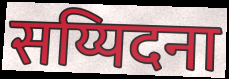
सय्यिदना